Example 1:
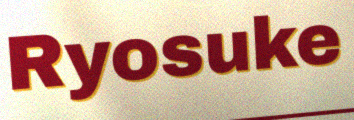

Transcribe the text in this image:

Ryosuke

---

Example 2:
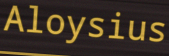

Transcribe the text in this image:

Aloysius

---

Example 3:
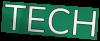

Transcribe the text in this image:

TECH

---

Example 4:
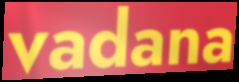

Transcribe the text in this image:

vadana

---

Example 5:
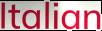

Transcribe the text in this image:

Italian